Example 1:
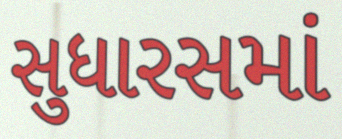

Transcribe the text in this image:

સુધારસમાં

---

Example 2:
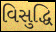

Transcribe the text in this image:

વિસુદ્ધિ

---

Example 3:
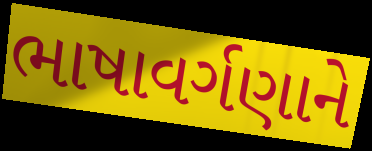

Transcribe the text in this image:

ભાષાવર્ગણાને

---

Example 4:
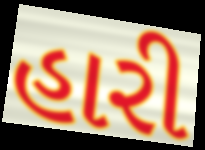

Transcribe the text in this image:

હારી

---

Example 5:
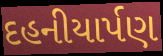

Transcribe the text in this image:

દહનીયાર્પણ